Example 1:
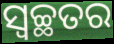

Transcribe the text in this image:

ସ୍ଵଚ୍ଛତର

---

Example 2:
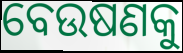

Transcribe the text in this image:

ବେଉଷଣକୁ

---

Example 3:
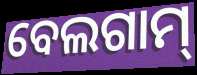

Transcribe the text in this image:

ବେଲଗାମ୍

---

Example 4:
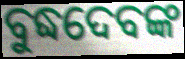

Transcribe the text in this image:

ବୁଦ୍ଧଦେବଙ୍କ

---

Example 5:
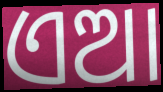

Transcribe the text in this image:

ଏଆ